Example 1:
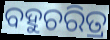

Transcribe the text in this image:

ବହୁଚରିତ୍ର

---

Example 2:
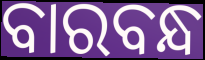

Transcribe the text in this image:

ବାରବନ୍ଧ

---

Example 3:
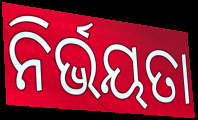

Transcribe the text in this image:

ନିର୍ଭୟତା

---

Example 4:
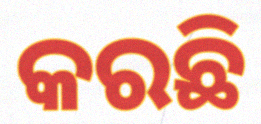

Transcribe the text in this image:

କରଛି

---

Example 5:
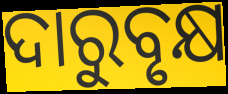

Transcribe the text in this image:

ଦାରୁବୃକ୍ଷ